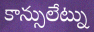
కాన్సులేట్ను